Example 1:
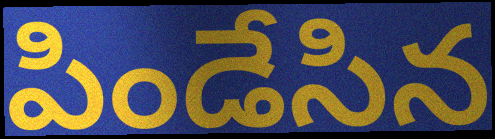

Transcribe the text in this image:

పిండేసిన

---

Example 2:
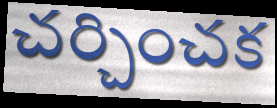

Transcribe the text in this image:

చర్చించక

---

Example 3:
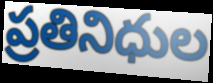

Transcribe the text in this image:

ప్రతినిధుల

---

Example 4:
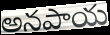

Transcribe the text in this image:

అనపాయ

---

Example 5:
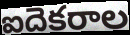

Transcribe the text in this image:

ఐదెకరాల